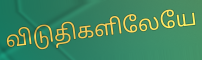
விடுதிகளிலேயே